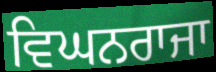
ਵਿਘਨਰਾਜਾ